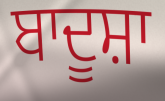
ਬਾਦੂਸ਼ਾ